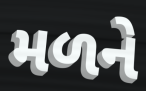
મળને